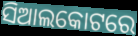
ସିଆଲକୋଟରେ